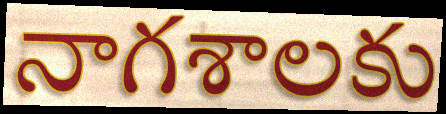
నాగశాలకు